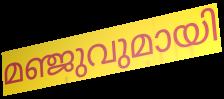
മഞ്ജുവുമായി